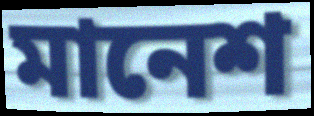
মানেশ